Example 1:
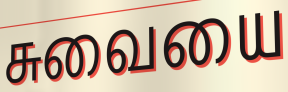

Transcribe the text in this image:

சுவையை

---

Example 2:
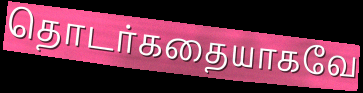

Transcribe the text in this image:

தொடர்கதையாகவே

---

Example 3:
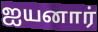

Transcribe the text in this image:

ஐயனார்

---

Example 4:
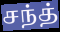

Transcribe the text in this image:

சந்த்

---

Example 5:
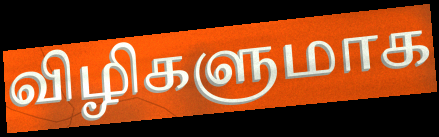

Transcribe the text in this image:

விழிகளுமாக